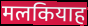
मलकियाह